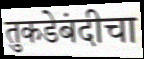
तुकडेबंदीचा